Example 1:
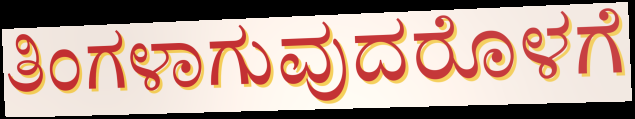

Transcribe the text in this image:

ತಿಂಗಳಾಗುವುದರೊಳಗೆ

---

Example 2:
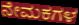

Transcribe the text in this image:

ನೇಮಕಗಳ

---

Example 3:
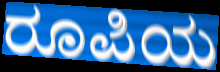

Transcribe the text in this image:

ರೂಪಿಯ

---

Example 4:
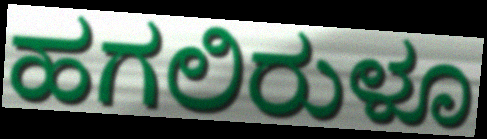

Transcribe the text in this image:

ಹಗಲಿರುಳೂ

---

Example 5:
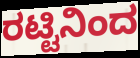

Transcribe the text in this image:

ರಟ್ಟಿನಿಂದ